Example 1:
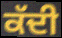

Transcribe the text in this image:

ਕੱਦੀ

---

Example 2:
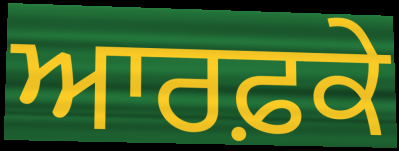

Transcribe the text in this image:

ਆਰਫ਼ਕੇ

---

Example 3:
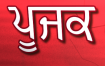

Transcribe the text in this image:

ਪੂਜਕ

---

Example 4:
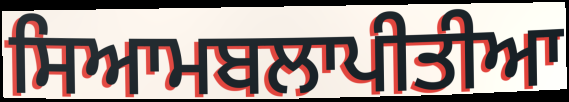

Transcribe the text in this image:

ਸਿਆਮਬਲਾਪੀਤੀਆ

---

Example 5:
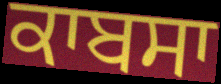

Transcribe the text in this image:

ਕਾਬਸਾ